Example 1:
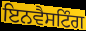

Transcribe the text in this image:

ਇਨਵੈਸਟਿੰਗ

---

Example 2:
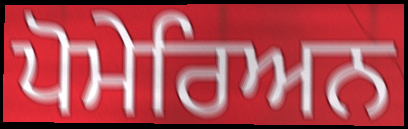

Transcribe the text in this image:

ਪੋਮੇਰਿਅਨ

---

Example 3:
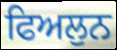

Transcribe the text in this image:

ਫਿਅਲੁਨ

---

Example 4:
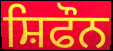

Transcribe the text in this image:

ਸ਼ਿਫੌਨ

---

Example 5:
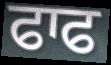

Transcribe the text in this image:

ਫਾਫ